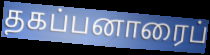
தகப்பனாரைப்